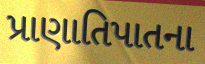
પ્રાણાતિપાતના